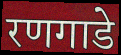
रणगाडे